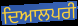
ਦਿਆਲਪਰੀ